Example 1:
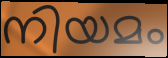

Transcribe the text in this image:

നിയമം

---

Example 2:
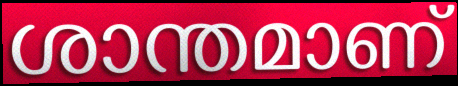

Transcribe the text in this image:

ശാന്തമാണ്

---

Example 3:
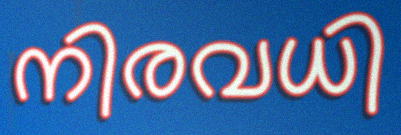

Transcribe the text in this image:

നിരവധി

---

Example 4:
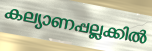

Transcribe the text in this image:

കല്യാണപ്പല്ലക്കിൽ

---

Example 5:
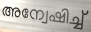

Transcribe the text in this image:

അന്വേഷിച്ച്